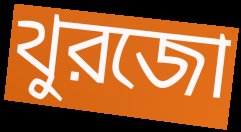
থুরজো